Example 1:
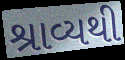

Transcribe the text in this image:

શ્રાવ્યથી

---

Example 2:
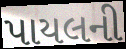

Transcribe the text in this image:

પાયલની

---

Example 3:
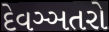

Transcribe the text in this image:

દેવઞ્ઞતરો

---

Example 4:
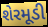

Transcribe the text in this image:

શેરમૂડી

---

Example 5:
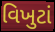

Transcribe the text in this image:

વિખુટાં